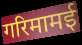
गरिमामई